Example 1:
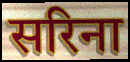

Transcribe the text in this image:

सरिना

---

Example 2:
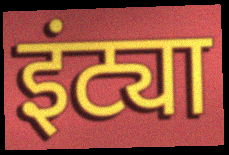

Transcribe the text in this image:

इंट्या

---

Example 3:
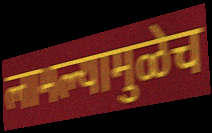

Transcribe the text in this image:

लाभल्यामुळेच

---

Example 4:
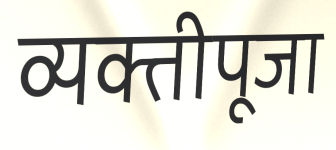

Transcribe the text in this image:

व्यक्तीपूजा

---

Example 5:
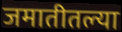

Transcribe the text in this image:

जमातीतल्या